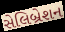
સેલિબ્રેશન